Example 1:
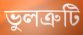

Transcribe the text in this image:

ভুলত্রুটি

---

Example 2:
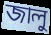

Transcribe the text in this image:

জালু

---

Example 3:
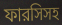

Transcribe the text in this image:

ফারসিসহ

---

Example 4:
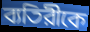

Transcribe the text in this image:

ব্যতিরীকে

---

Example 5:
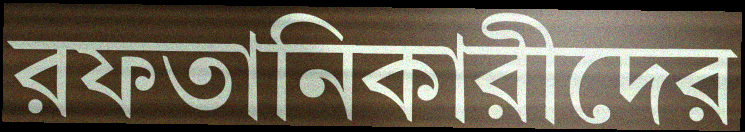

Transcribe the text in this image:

রফতানিকারীদের